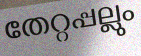
തേറ്റപ്പല്ലും